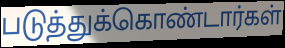
படுத்துக்கொண்டார்கள்